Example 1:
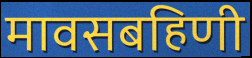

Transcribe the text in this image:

मावसबहिणी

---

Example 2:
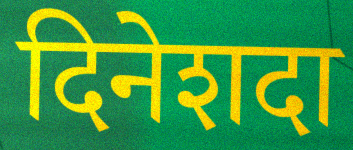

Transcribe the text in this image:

दिनेशदा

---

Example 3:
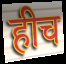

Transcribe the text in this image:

हीच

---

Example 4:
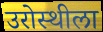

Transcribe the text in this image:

उरोस्थीला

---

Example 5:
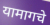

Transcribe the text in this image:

यामागचे